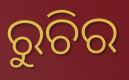
ରୁଚିର